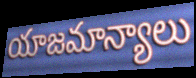
యాజమాన్యాలు